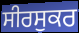
ਸੀਰਸੁਕਰ